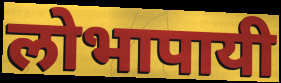
लोभापायी